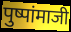
पुष्पांमाजी